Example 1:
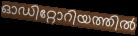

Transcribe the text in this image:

ഓഡിറ്റോറിയത്തിൽ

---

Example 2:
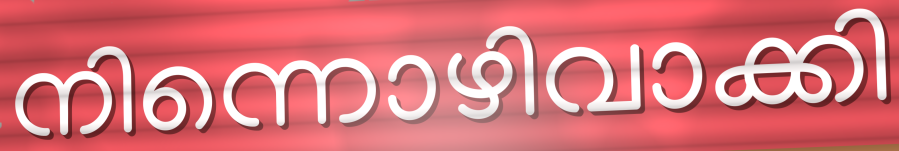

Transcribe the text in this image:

നിന്നൊഴിവാക്കി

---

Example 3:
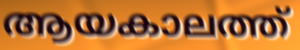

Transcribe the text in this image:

ആയകാലത്ത്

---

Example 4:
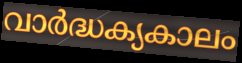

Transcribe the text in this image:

വാർദ്ധക്യകാലം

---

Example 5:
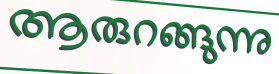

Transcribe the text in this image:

ആരുറങ്ങുന്നു